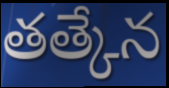
తత్కేన